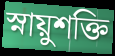
স্নায়ুশক্তি